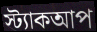
স্ট্যাকআপ